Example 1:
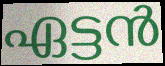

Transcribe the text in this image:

ഏട്ടൻ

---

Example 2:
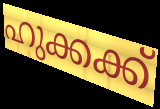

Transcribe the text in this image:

ഹുക്കക്ക്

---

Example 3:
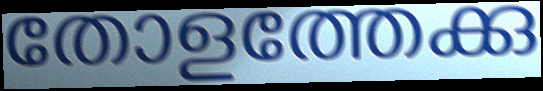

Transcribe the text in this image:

തോളത്തേക്കു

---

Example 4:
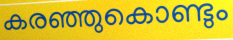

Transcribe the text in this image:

കരഞ്ഞുകൊണ്ടും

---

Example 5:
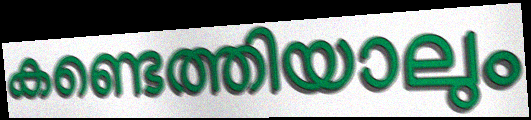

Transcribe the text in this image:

കണ്ടെത്തിയാലും